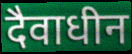
दैवाधीन